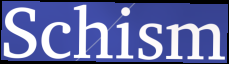
Schism